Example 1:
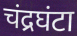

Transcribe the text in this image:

चंद्रघंटा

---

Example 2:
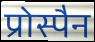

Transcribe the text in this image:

प्रोस्पैन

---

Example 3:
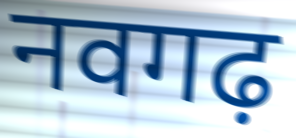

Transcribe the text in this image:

नवगढ़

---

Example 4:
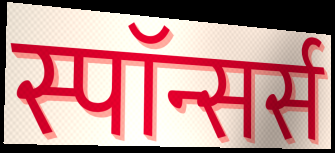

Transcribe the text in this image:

स्पॉन्सर्स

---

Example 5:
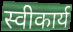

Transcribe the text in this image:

स्वीकार्य